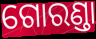
ଗୋରଣ୍ଡା